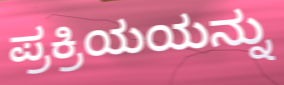
ಪ್ರಕ್ರಿಯಯನ್ನು